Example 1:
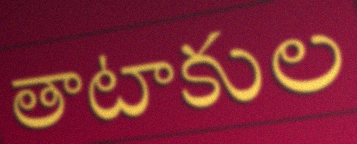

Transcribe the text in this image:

తాటాకుల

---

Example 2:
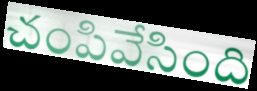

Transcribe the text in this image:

చంపివేసింది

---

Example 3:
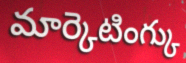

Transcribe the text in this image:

మార్కెటింగ్కు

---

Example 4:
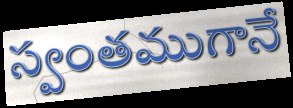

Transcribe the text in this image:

స్వంతముగానే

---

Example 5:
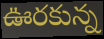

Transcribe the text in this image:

ఊరకున్న